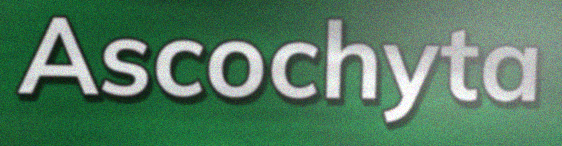
Ascochyta